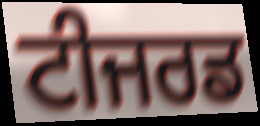
ਟੀਜਰਡ